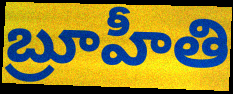
బ్రూహీతి